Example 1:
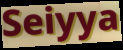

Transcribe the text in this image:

Seiyya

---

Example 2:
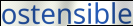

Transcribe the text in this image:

ostensible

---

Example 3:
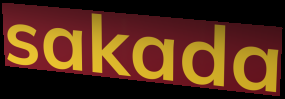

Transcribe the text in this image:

sakada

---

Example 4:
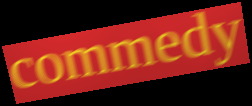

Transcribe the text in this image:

commedy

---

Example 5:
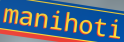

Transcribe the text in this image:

manihoti